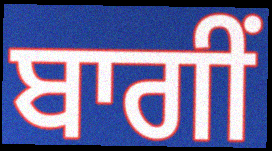
ਬਾਗੀਂ